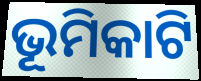
ଭୂମିକାଟି